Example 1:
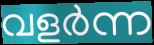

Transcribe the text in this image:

വളർന്ന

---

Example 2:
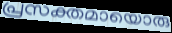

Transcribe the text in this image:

പ്രസക്തമായൊരു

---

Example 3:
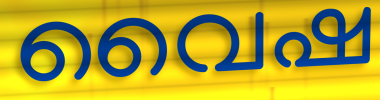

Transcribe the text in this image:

വൈഷ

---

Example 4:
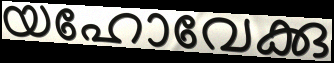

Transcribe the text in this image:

യഹോവേക്കു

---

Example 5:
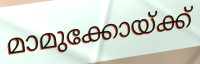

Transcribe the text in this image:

മാമുക്കോയ്ക്ക്